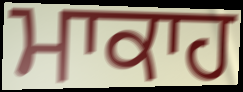
ਮਾਕਾਹ